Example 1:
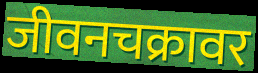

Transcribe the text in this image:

जीवनचक्रावर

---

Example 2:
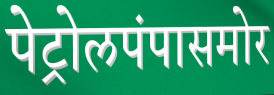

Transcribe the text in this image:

पेट्रोलपंपासमोर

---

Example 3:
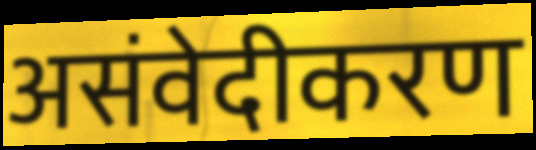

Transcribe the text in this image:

असंवेदीकरण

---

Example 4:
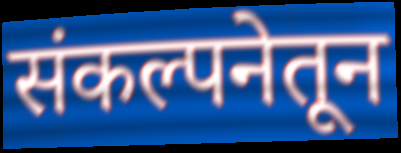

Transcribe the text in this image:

संकल्पनेतून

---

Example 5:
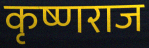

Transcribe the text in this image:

कृष्णराज